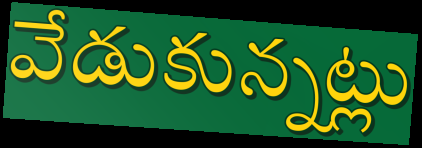
వేడుకున్నట్లు